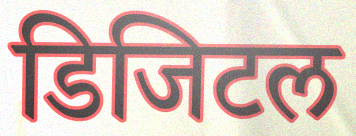
डिजिटल